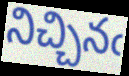
నిచ్చినఁ